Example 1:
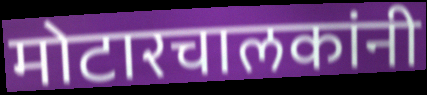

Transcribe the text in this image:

मोटारचालकांनी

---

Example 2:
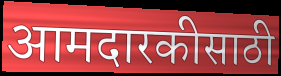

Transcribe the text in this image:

आमदारकीसाठी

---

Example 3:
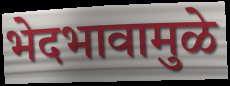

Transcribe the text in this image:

भेदभावामुळे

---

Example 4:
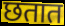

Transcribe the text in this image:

छतात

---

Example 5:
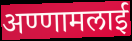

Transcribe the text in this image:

अण्णामलाई